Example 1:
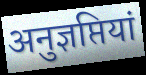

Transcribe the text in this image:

अनुज्ञप्तियां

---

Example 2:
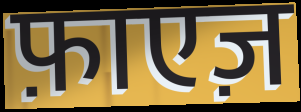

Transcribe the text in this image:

फ़ाएज़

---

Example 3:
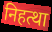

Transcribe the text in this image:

निहत्था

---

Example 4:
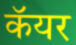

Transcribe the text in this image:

कॅयर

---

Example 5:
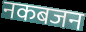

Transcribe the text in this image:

नकबजन